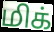
மிக்